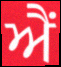
ਐੰ